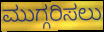
ಮುಗ್ಗರಿಸಲು